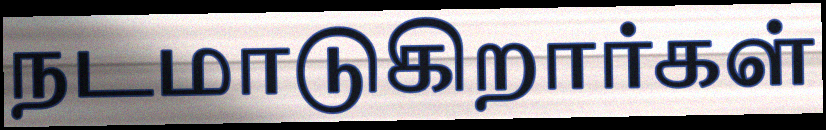
நடமாடுகிறார்கள்